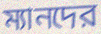
ম্যানদের